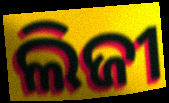
ଲିଜୀ